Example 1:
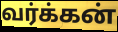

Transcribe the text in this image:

வர்க்கன்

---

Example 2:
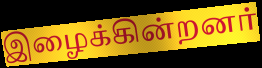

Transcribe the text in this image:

இழைக்கின்றனர்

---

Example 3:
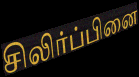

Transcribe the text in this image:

சிலிர்ப்பினை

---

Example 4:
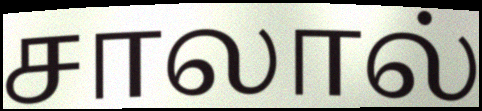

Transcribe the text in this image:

சாலால்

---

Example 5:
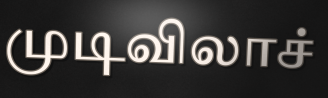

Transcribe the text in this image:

முடிவிலாச்